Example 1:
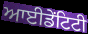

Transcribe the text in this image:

ਆਈਡੇਂਟਿਟੀ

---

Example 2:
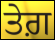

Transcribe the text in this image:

ਤੇਗ਼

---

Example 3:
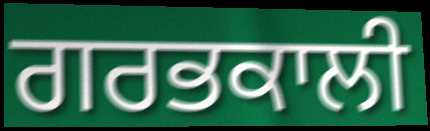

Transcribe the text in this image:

ਗਰਭਕਾਲੀ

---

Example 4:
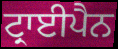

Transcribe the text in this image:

ਟ੍ਰਾਈਪੈਨ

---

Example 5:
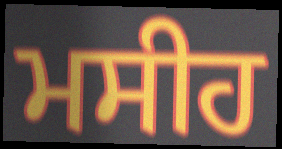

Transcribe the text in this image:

ਮਸੀਹ